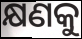
କ୍ଷଣକୁ